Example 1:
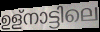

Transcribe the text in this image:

ഉള്നാട്ടിലെ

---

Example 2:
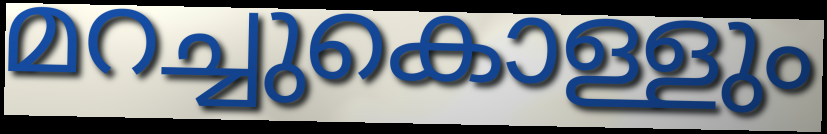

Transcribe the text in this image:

മറച്ചുകൊള്ളും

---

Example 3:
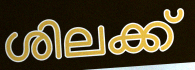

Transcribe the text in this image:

ശിലക്ക്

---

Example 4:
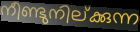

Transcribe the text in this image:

നീണ്ടുനില്ക്കുന്ന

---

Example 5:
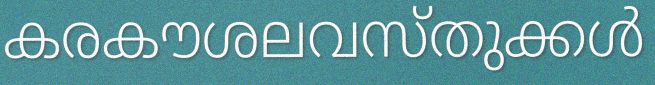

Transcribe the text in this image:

കരകൗശലവസ്തുക്കൾ